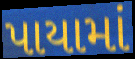
પાયામાં